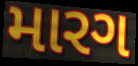
મારગ